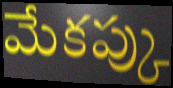
మేకప్కు